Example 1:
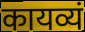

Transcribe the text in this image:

कायव्यं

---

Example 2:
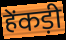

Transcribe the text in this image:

हेंकड़ी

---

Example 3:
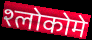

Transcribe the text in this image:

श्लोकोमे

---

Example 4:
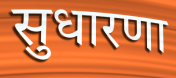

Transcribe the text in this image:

सुधारणा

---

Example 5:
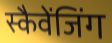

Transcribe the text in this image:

स्कैवेंजिंग